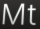
Mt